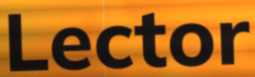
Lector